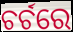
ଚର୍ଚରେ